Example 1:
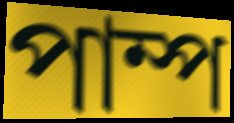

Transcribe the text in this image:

পাম্প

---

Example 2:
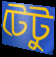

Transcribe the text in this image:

টেটু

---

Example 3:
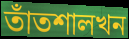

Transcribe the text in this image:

তাঁতশালখন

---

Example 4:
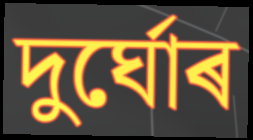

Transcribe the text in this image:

দুৰ্ঘোৰ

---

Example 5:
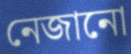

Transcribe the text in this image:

নেজানো